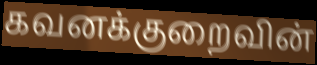
கவனக்குறைவின்